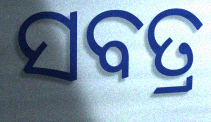
ସବତ୍ର